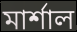
মাৰ্শাল